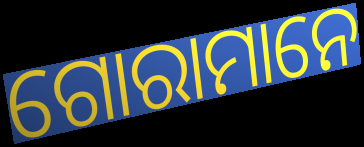
ଗୋରାମାନେ